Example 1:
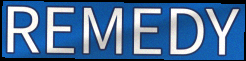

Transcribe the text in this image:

REMEDY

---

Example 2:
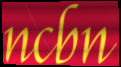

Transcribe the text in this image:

ncbn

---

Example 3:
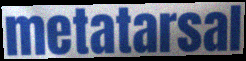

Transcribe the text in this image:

metatarsal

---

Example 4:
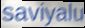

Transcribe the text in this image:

saviyalu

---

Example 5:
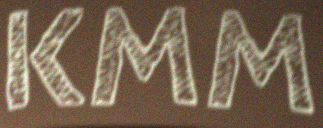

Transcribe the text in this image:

KMM